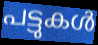
പട്ടുകൾ